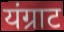
यंग्राट